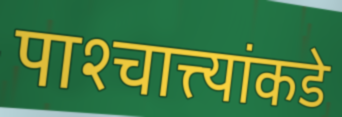
पाश्चात्त्यांकडे